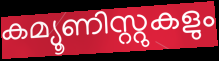
കമ്യൂണിസ്റ്റുകളും